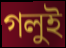
গলুই